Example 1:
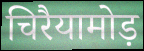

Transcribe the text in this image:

चिरैयामोड़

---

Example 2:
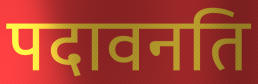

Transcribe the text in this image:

पदावनति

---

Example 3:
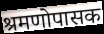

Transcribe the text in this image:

श्रमणोपासक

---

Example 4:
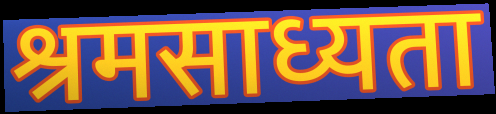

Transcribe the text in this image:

श्रमसाध्यता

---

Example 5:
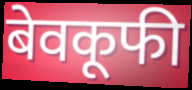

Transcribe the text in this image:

बेवकूफी